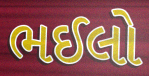
ભઈલો